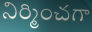
నిర్మించగా